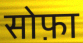
सोफ़ा